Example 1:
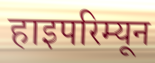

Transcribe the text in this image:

हाइपरिम्यून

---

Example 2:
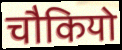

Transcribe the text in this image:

चौकियो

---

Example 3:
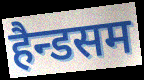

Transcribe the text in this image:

हैन्डसम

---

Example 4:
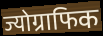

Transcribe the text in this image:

ज्योग्राफिक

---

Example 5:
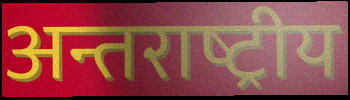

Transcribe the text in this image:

अन्तराष्ट्रीय